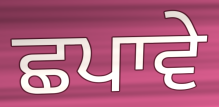
ਛਪਾਵੇ